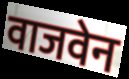
वाजवेन